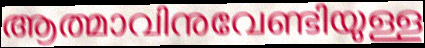
ആത്മാവിനുവേണ്ടിയുള്ള